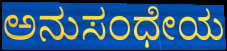
ಅನುಸಂಧೇಯ